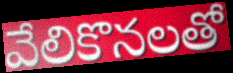
వేలికొనలతో